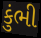
કુંભી